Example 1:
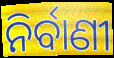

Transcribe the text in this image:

ନିର୍ବାଣୀ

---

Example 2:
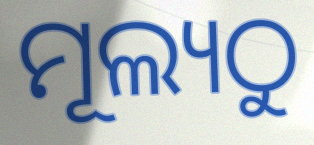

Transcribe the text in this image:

ମୂଲ୍ୟଠୁ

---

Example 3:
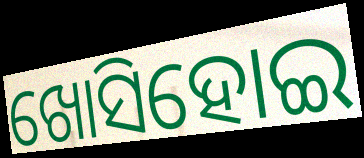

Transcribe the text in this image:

ଖୋସିହୋଇ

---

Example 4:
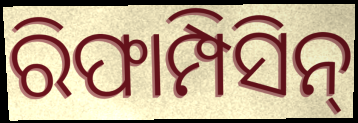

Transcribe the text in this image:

ରିଫାମ୍ପିସିନ୍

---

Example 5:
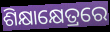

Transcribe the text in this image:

ଶିକ୍ଷାକ୍ଷେତ୍ରରେ